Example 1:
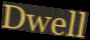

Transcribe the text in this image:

Dwell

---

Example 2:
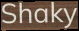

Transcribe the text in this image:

Shaky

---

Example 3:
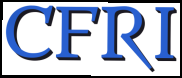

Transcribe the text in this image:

CFRI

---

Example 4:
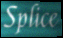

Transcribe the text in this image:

Splice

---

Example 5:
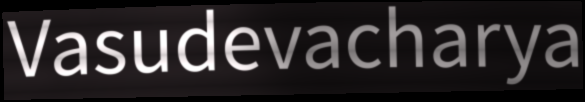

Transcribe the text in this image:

Vasudevacharya